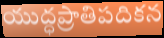
యుద్ధప్రాతిపదికన